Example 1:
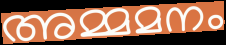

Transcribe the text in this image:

അമ്മമനം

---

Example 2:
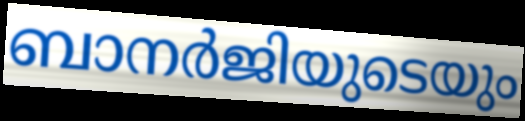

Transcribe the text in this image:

ബാനർജിയുടെയും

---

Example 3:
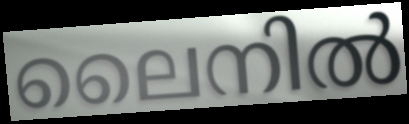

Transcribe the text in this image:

ലൈനിൽ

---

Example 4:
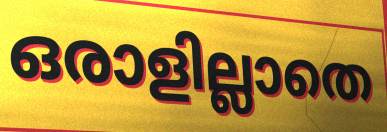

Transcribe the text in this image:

ഒരാളില്ലാതെ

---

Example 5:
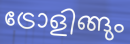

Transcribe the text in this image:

ട്രോളിങ്ങും